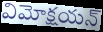
విమోక్షయన్